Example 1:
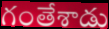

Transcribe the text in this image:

గంతేశాడు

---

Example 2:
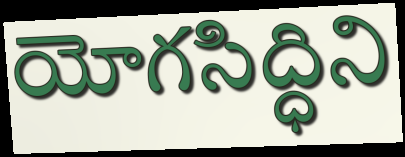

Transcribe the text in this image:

యోగసిద్ధిని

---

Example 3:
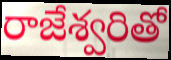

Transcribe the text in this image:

రాజేశ్వరితో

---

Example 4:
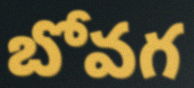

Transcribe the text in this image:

బోవగ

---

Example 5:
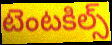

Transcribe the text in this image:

టెంటకిల్స్